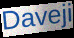
Daveji